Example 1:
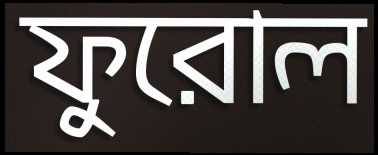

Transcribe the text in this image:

ফুরোল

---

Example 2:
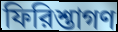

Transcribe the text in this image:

ফিরিশ্তাগণ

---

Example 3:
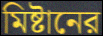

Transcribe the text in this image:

মিষ্টানের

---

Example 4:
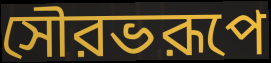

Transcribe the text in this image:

সৌরভরূপে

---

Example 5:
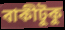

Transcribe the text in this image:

বাকীটুকু